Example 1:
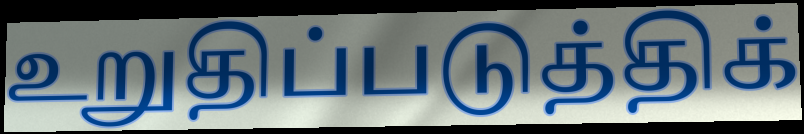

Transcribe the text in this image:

உறுதிப்படுத்திக்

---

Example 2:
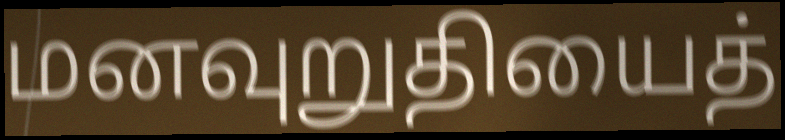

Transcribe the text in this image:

மனவுறுதியைத்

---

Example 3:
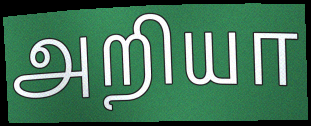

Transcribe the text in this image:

அறியா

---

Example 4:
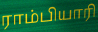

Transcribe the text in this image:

ராம்பியாரி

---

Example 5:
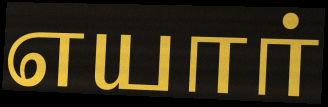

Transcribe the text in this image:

எயார்